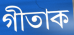
গীতাক